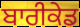
ਬਾਰੀਕੇਡ